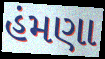
હંમણા